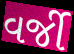
વર્જી